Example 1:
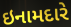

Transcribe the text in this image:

ઇનામદારે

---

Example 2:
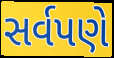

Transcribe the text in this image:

સર્વપણે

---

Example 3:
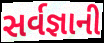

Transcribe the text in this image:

સર્વજ્ઞાની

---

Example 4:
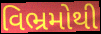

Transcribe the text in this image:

વિભ્રમોથી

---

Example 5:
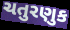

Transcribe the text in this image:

ચતુરણુક